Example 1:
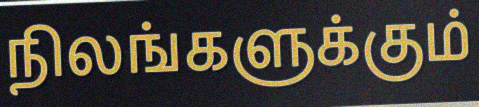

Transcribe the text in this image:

நிலங்களுக்கும்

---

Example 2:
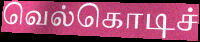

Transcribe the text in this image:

வெல்கொடிச்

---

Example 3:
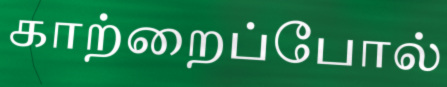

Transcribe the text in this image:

காற்றைப்போல்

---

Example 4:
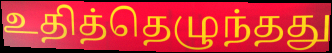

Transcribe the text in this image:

உதித்தெழுந்தது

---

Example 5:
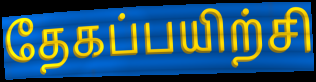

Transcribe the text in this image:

தேகப்பயிற்சி